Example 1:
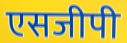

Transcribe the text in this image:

एसजीपी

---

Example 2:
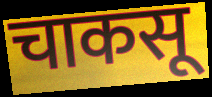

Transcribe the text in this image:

चाकसू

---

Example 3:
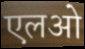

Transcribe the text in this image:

एलओ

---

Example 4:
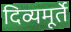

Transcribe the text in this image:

दिव्यमूर्ते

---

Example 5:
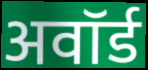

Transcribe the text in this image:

अवॉर्ड